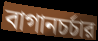
বাগানচর্চার